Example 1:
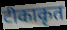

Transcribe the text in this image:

टीकाकृत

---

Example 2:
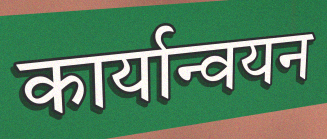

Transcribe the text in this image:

कार्यान्‍वयन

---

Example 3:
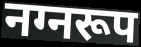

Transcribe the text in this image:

नग्नरूप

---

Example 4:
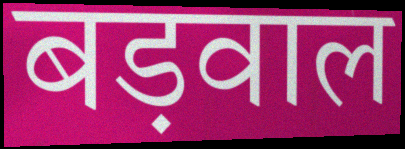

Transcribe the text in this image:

बड़वाल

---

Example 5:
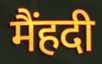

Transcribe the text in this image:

मैंहदी